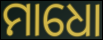
ମାଧୋ